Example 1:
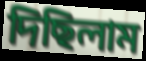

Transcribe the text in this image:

দিছিলাম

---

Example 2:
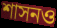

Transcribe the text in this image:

শাসনও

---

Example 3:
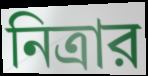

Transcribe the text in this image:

নিত্রার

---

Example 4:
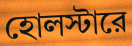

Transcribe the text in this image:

হোলস্টারে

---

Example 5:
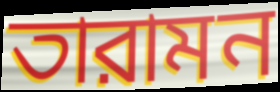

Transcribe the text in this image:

তারামন